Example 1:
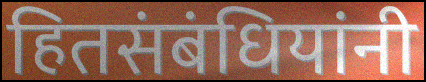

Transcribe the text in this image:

हितसंबंधियांनी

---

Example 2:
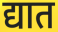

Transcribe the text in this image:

द्यात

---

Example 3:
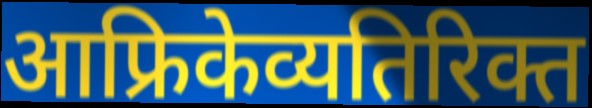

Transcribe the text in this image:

आफ्रिकेव्यतिरिक्त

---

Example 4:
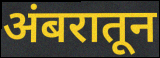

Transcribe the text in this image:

अंबरातून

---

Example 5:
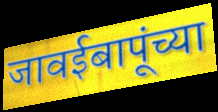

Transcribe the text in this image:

जावईबापूंच्या